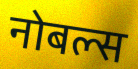
नोबल्स